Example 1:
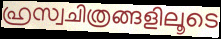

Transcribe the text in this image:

ഹ്രസ്വചിത്രങ്ങളിലൂടെ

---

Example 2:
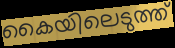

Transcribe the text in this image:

കൈയിലെടുത്ത്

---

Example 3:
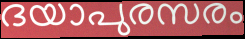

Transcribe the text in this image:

ദയാപുരസരം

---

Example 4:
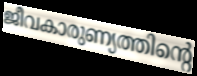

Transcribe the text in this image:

ജീവകാരുണ്യത്തിന്റെ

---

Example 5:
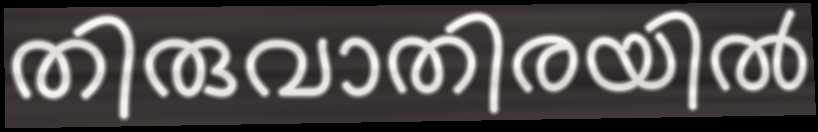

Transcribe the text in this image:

തിരുവാതിരയിൽ